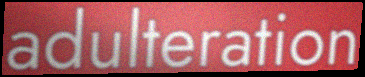
adulteration